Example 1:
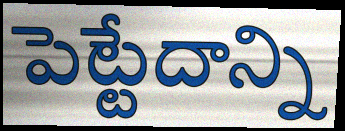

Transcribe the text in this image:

పెట్టేదాన్ని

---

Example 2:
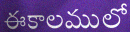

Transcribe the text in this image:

ఈకాలములో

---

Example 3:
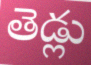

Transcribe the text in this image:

తెడ్లు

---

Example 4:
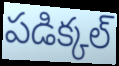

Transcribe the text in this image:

పడిక్కల్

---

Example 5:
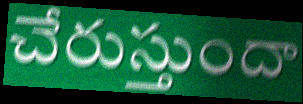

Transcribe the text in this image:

చేరుస్తుందా